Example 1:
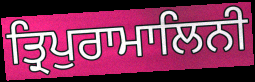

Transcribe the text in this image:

ਤ੍ਰਿਪੁਰਾਮਾਲਿਨੀ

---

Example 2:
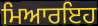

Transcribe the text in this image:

ਮਿਆਰਇਹ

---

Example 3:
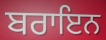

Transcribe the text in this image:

ਬਰਾਇਨ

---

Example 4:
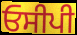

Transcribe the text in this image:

ਓਸੀਪੀ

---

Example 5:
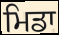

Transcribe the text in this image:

ਮਿਡਾ